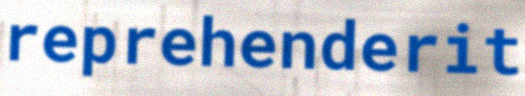
reprehenderit